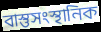
বাস্তুসংস্থানিক